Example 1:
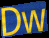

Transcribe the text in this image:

Dw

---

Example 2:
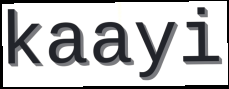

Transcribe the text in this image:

kaayi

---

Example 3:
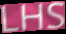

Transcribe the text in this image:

LHS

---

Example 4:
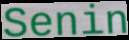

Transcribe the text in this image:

Senin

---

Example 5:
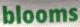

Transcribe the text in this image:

blooms